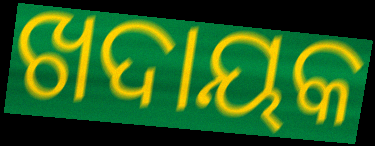
ଖଦାୟକ